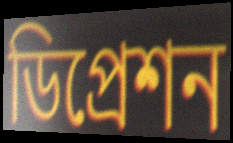
ডিপ্রেশন